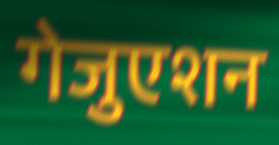
गेजुएशन